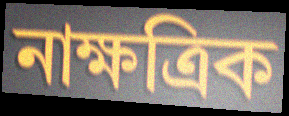
নাক্ষত্রিক